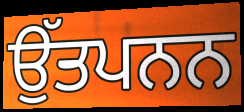
ਉੱਤਪਨਨ